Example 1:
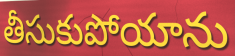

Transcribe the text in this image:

తీసుకుపోయాను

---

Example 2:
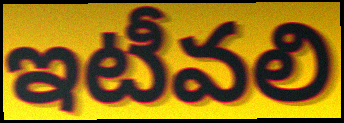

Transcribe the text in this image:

ఇటీవలి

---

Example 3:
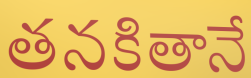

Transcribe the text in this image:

తనకితానే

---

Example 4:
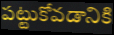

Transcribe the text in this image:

పట్టుకోవడానికి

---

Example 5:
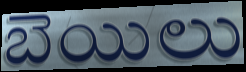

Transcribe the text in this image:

బెయిలు